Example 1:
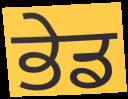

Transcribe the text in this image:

ਭੇਡ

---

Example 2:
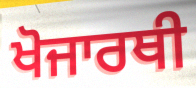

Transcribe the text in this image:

ਖੋਜਾਰਥੀ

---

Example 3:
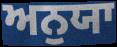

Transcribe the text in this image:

ਅਨੁਯਾ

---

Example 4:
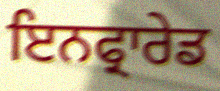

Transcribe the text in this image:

ਇਨਫ੍ਰਾਰੇਡ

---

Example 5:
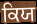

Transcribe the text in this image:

ਕਿਯ